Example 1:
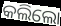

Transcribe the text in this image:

କଲିଲୋ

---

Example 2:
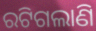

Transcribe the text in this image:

ରଟିଗଲାଣି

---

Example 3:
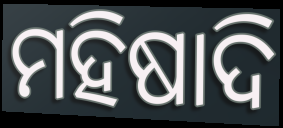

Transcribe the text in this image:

ମହିଷାଦି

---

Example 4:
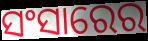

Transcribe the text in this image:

ସଂସାରେର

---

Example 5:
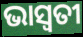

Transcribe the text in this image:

ଭାସ୍ଵତୀ